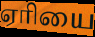
ஏரியை